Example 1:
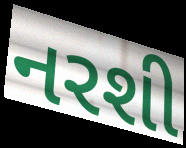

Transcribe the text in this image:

નરશી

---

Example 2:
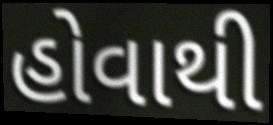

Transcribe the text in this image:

હોવાથી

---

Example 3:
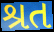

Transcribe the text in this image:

શ્રત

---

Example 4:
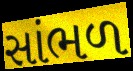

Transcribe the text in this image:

સાંભળ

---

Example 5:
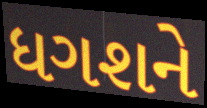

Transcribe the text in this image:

ધગશને